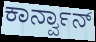
ಕಾರ್ನ್ವಾನ್